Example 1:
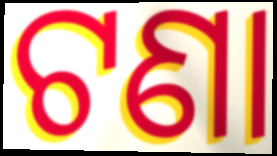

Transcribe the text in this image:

ଟଣା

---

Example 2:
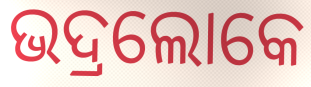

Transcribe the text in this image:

ଭଦ୍ରଲୋକେ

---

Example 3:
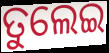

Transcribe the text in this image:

ତୁଲେଇ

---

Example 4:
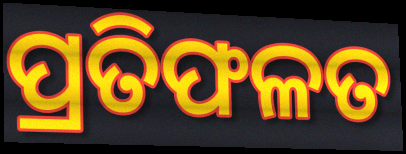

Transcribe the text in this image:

ପ୍ରତିଫଳତ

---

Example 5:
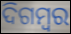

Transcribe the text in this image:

ଦିଗମ୍ୱର